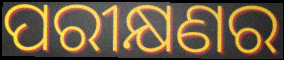
ପରୀକ୍ଷଣର